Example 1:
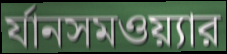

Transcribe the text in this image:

র্যানসমওয়্যার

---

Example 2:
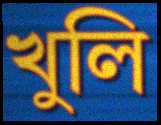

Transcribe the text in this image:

খুলি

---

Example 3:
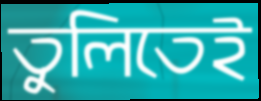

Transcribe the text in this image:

তুলিতেই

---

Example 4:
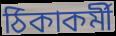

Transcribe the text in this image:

ঠিকাকর্মী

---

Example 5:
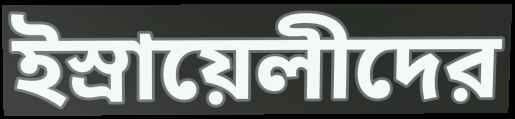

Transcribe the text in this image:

ইস্রায়েলীদের